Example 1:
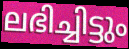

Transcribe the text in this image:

ലഭിച്ചിട്ടും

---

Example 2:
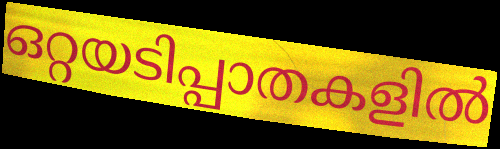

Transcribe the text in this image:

ഒറ്റയടിപ്പാതകളിൽ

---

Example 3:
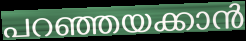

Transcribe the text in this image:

പറഞ്ഞയക്കാൻ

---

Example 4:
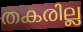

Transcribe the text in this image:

തകരില്ല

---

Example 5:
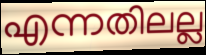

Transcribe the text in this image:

എന്നതിലല്ല